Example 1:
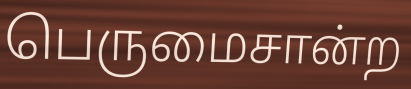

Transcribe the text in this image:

பெருமைசான்ற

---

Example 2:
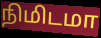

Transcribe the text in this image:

நிமிடமா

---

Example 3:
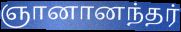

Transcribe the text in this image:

ஞானானந்தர்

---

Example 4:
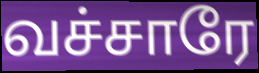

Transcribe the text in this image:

வச்சாரே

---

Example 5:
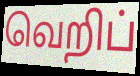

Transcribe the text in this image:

வெறிப்